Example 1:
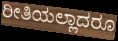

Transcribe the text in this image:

ರೀತಿಯಲ್ಲಾದರೂ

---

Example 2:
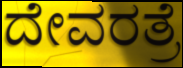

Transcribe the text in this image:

ದೇವರತ್ರೆ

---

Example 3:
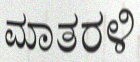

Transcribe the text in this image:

ಮಾತರಳಿ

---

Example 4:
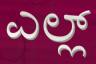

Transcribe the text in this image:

ಎಲ್ಲ್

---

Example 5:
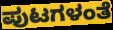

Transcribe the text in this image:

ಪುಟಗಳಂತೆ